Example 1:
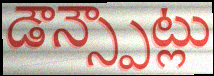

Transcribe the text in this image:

డౌన్స్పౌట్లు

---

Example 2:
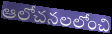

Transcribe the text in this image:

ఆలోచనలలోంచి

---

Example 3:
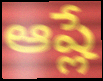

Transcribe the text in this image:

ఆష్లే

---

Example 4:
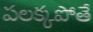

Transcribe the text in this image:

పలక్కపోతే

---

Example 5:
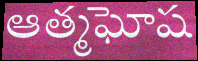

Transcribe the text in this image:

ఆత్మఘోష